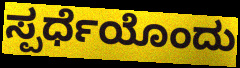
ಸ್ಪರ್ಧೆಯೊಂದು